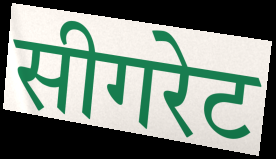
सीगरेट